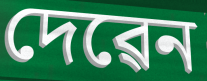
দেৱেন